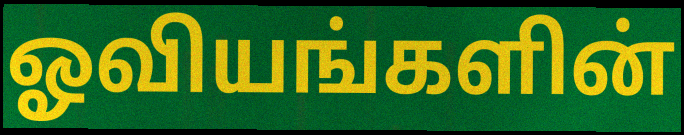
ஓவியங்களின்